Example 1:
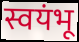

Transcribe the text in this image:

स्वयंभू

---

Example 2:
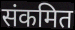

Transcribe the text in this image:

संकमित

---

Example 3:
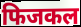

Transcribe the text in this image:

फिजकल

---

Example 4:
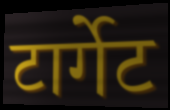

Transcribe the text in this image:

टार्गेट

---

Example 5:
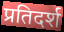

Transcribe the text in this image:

प्रतिदर्श